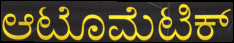
ಆಟೊಮೆಟಿಕ್